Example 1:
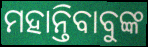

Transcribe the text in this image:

ମହାନ୍ତିବାବୁଙ୍କ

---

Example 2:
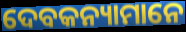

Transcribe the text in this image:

ଦେବକନ୍ୟାମାନେ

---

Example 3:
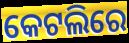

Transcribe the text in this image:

କେଟଲିରେ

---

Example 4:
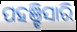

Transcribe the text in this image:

ପହଞ୍ଚିସାରି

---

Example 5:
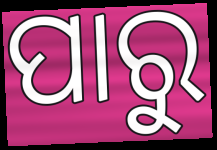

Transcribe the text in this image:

ପାରୁ